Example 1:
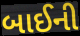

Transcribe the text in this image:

બાઈની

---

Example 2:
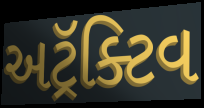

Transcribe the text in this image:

અટ્રૅક્ટિવ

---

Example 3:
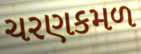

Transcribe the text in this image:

ચરણકમળ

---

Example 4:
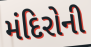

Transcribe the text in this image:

મંદિરોની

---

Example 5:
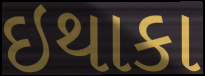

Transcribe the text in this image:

ઇથાકા